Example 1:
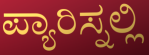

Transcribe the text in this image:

ಪ್ಯಾರಿಸ್ನಲ್ಲಿ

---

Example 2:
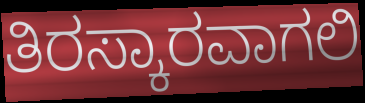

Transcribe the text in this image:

ತಿರಸ್ಕಾರವಾಗಲಿ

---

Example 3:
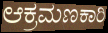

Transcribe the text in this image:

ಆಕ್ರಮಣಕಾರಿ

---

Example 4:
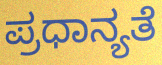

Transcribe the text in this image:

ಪ್ರಧಾನ್ಯತೆ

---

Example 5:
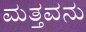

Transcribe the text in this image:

ಮತ್ತವನು